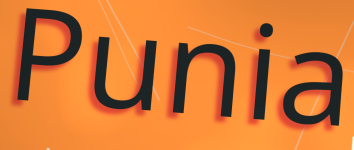
Punia